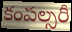
కంపల్సరీ